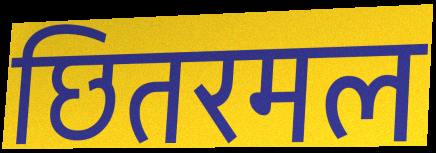
छितरमल